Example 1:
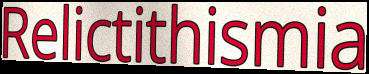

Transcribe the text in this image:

Relictithismia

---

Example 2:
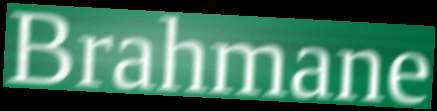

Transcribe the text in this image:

Brahmane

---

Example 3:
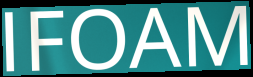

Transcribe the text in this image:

IFOAM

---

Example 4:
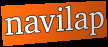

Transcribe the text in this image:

navilap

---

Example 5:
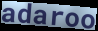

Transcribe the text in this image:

adaroo